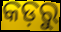
କଡ଼ରୁ